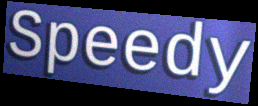
Speedy